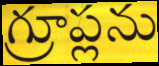
గ్రూప్లను